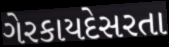
ગેરકાયદેસરતા